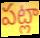
పట్లా